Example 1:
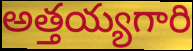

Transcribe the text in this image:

అత్తయ్యగారి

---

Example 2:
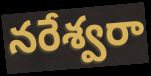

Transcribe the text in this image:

నరేశ్వరా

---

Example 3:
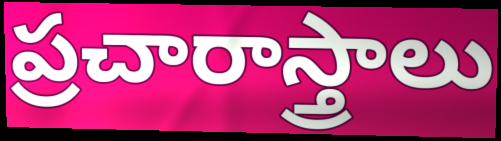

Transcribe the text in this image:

ప్రచారాస్త్రాలు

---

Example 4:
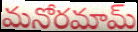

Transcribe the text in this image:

మనోరమామ్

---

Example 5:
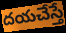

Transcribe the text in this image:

దయచేస్తే